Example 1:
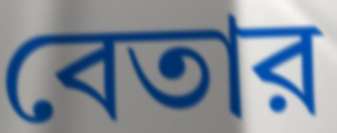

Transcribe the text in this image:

বেতার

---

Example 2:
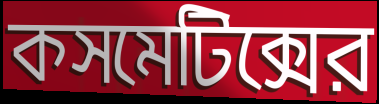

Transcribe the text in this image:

কসমেটিক্সের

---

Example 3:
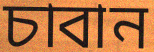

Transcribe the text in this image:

চাবান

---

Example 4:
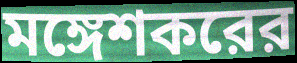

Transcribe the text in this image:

মঙ্গেশকরের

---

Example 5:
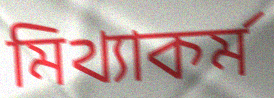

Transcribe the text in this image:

মিথ্যাকর্ম